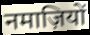
नमाज़ियों